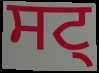
ਸਟ੍